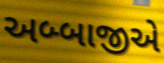
અબ્બાજીએ